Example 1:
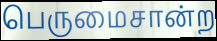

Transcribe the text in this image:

பெருமைசான்ற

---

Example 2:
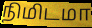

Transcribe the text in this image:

நிமிடமா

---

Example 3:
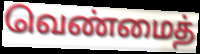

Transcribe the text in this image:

வெண்மைத்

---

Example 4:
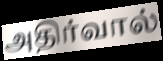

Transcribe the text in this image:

அதிர்வால்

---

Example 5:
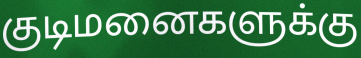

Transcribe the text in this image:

குடிமனைகளுக்கு